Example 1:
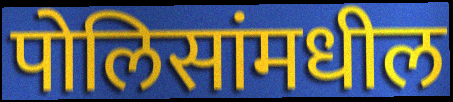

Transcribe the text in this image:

पोलिसांमधील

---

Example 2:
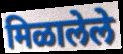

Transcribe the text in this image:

मिळालेले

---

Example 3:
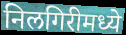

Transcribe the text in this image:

निलगिरीमध्ये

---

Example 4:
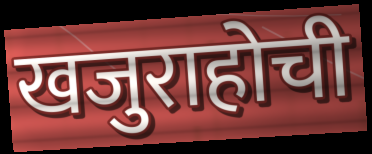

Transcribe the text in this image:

खजुराहोची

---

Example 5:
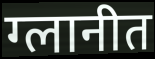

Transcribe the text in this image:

ग्लानीत